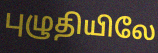
புழுதியிலே